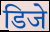
डिजे